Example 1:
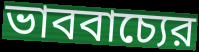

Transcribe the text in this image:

ভাববাচ্যের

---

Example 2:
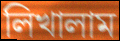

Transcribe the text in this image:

লিখালাম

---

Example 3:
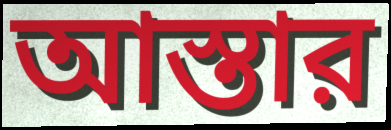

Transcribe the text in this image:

আস্তার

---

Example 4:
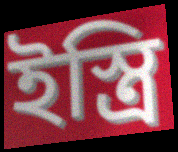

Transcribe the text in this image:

ইস্ত্রি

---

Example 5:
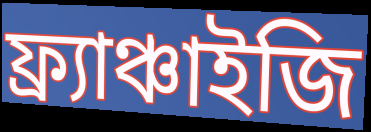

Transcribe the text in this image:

ফ্র্যাঞ্চাইজি